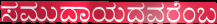
ಸಮುದಾಯದವರೆಂಬ